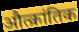
औत्क्रांतिक